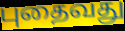
புதைவது